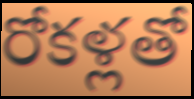
రోకళ్లతో